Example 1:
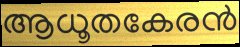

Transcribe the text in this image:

ആധൂതകേരൻ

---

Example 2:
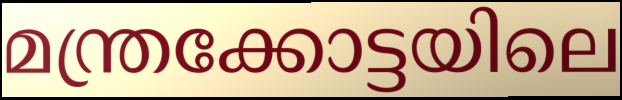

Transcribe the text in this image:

മന്ത്രക്കോട്ടയിലെ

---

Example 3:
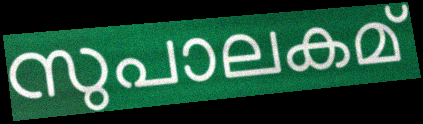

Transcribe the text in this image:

സുപാലകമ്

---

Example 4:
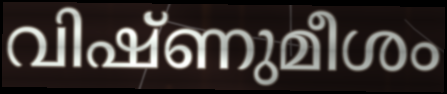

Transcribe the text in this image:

വിഷ്ണുമീശം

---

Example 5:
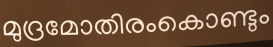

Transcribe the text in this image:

മുദ്രമോതിരംകൊണ്ടും